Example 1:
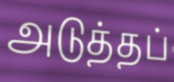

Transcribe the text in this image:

அடுத்தப்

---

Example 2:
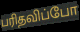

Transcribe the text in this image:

பரிதவிப்போ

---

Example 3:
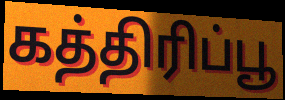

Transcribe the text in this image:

கத்திரிப்பூ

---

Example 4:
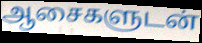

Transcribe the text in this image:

ஆசைகளுடன்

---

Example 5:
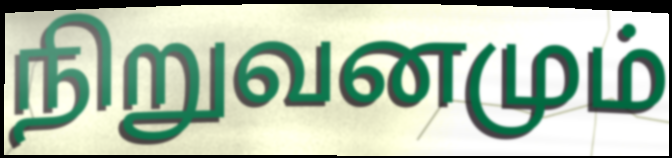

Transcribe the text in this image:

நிறுவனமும்